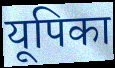
यूपिका